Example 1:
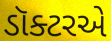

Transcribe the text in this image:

ડૉક્ટરએ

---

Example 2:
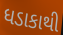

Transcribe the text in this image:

ધડાકાથી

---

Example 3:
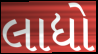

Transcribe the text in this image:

લાદ્યો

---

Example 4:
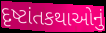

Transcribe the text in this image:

દૃષ્ટાંતકથાઓનું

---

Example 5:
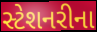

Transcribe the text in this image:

સ્ટેશનરીના